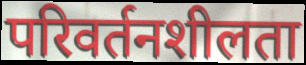
परिवर्तनशीलता